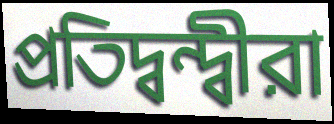
প্রতিদ্বন্দ্বীরা